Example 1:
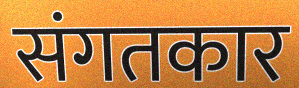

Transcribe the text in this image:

संगतकार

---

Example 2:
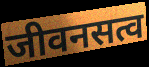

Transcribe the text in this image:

जीवनसत्व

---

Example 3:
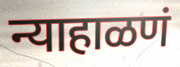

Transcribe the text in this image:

न्याहाळणं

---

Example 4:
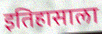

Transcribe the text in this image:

इतिहासाला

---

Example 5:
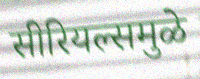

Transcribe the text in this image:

सीरियल्समुळे